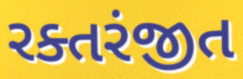
રક્તરંજીત